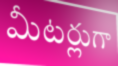
మీటర్లుగా